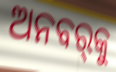
ଅନବର୍‌କୁ